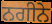
ਨਗੀਨੇ